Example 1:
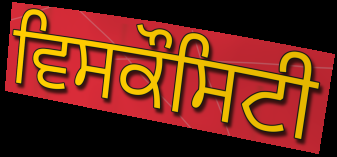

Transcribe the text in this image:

ਵਿਸਕੌਸਿਟੀ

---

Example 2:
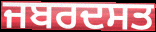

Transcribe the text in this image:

ਜਬਰਦਸਤ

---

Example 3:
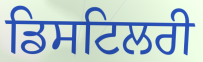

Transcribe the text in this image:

ਡਿਸਟਿਲਰੀ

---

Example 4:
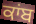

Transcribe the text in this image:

ਕਾਂਬ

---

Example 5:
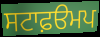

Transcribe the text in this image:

ਸਟਾਫ਼ੳਮਪ